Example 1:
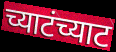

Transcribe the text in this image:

च्याटंच्याट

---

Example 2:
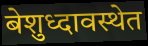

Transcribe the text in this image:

बेशुध्दावस्थेत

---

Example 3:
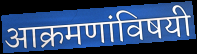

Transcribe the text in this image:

आक्रमणांविषयी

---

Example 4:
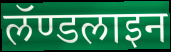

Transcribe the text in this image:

लॅण्डलाइन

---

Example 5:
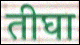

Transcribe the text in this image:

तीघा